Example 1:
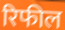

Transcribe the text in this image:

रिफील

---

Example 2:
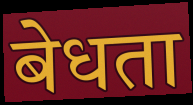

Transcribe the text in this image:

बेधता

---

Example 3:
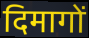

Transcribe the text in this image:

दिमागों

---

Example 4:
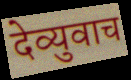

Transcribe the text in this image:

देव्युवाच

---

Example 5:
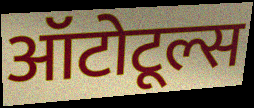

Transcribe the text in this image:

ऑटोटूल्स